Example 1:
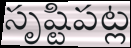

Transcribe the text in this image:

సృష్టిపట్ల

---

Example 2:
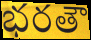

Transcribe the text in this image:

భరతౌ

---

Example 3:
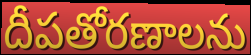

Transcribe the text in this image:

దీపతోరణాలను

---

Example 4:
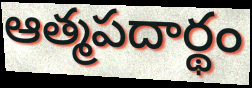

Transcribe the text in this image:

ఆత్మపదార్థం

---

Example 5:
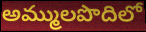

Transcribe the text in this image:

అమ్ములపొదిలో